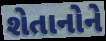
શેતાનોને